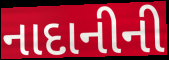
નાદાનીની